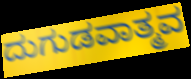
ದುಗುಡವಾತ್ಮವ